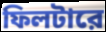
ফিলটারে